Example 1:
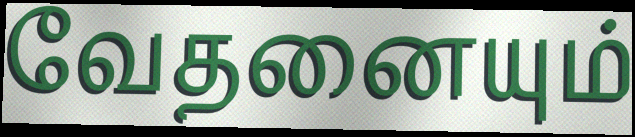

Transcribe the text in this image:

வேதனையும்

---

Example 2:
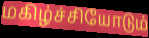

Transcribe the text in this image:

மகிழ்ச்சியோடும்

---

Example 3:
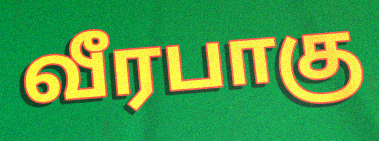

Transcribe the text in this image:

வீரபாகு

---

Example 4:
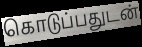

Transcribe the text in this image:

கொடுப்பதுடன்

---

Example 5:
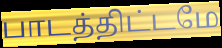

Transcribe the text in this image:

பாடத்திட்டமே